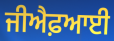
ਜੀਐਫ਼ਆਈ